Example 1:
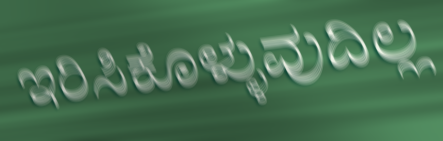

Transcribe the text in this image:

ಇರಿಸಿಕೊಳ್ಳುವುದಿಲ್ಲ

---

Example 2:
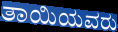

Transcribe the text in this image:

ತಾಯಿಯವರು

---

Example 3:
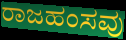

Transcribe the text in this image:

ರಾಜಹಂಸವು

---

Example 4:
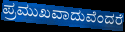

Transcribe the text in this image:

ಪ್ರಮುಖವಾದುವೆಂದರೆ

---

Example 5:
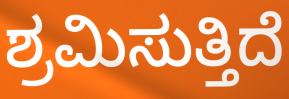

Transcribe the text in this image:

ಶ್ರಮಿಸುತ್ತಿದೆ